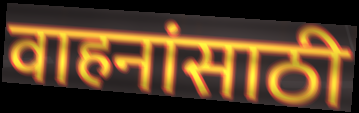
वाहनांसाठी